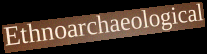
Ethnoarchaeological